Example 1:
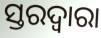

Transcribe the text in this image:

ସ୍ତରଦ୍ୱାରା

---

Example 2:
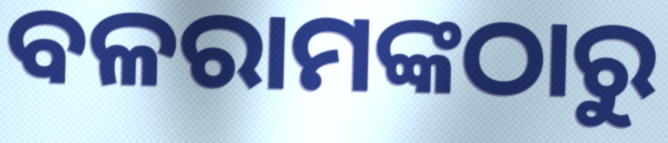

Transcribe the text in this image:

ବଳରାମଙ୍କଠାରୁ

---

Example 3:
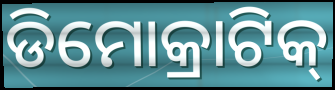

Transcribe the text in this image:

ଡିମୋକ୍ରାଟିକ୍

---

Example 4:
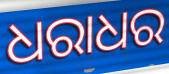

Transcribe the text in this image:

ଧରାଧର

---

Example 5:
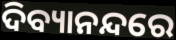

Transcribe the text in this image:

ଦିବ୍ୟାନନ୍ଦରେ